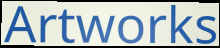
Artworks